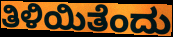
ತಿಳಿಯಿತೆಂದು